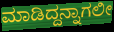
ಮಾಡಿದ್ದನ್ನಾಗಲೀ